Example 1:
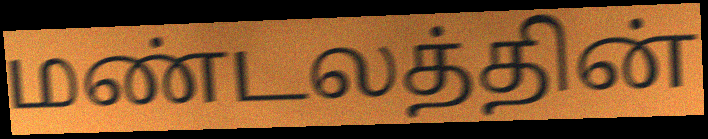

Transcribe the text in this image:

மண்டலத்தின்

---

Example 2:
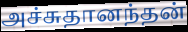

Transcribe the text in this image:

அச்சுதானந்தன்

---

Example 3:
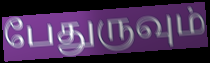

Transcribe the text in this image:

பேதுருவும்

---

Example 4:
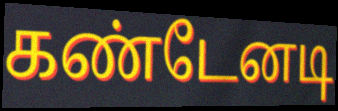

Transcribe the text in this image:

கண்டேனடி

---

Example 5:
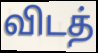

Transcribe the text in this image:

விடத்